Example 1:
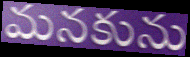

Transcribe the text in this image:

మనకును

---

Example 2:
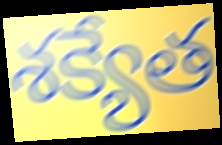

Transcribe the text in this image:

శక్యేత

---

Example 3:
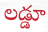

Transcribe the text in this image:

లడ్డూ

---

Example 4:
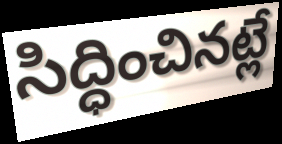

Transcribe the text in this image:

సిద్ధించినట్లే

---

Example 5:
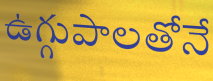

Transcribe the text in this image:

ఉగ్గుపాలతోనే